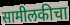
सामीलकीचा